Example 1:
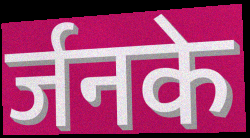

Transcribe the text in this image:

र्जनके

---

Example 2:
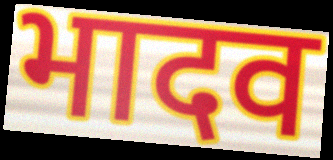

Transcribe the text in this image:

भादव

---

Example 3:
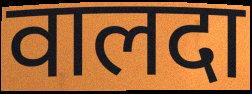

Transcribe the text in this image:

वालदा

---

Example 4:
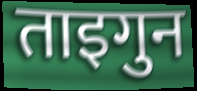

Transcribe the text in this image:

ताइगुन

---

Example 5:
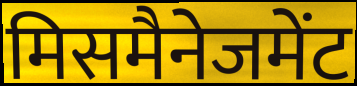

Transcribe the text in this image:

मिसमैनेजमेंट